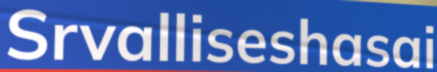
Srvalliseshasai